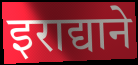
इराद्याने